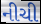
નીચી